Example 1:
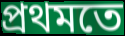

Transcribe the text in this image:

প্ৰথমতে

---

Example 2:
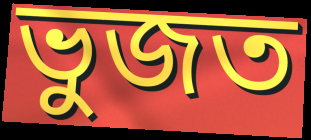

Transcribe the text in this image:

ভুজত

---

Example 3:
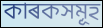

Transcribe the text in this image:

কাৰকসমূহ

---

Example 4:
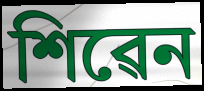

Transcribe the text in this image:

শিৱেন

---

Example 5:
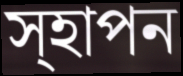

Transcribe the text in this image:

স্হাপন